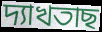
দ্যাখতাছ